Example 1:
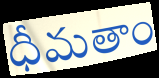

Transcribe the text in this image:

ధీమతాం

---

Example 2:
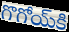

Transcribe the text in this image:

గొగోయ్‌కి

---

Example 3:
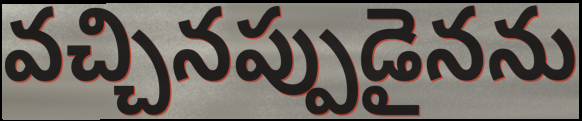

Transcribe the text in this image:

వచ్చినప్పుడైనను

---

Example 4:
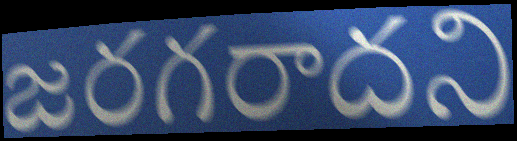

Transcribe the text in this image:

జరగరాదని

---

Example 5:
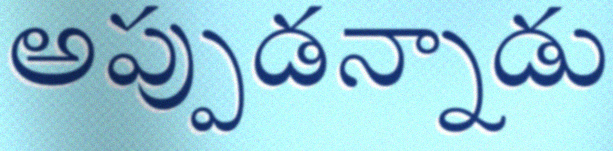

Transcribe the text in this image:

అప్పుడన్నాడు